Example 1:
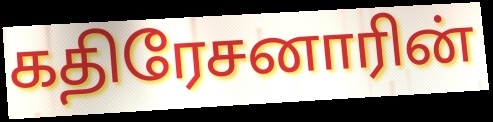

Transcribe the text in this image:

கதிரேசனாரின்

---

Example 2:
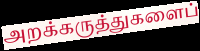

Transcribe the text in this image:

அறக்கருத்துகளைப்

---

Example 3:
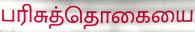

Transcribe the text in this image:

பரிசுத்தொகையை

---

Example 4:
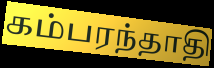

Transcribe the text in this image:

கம்பரந்தாதி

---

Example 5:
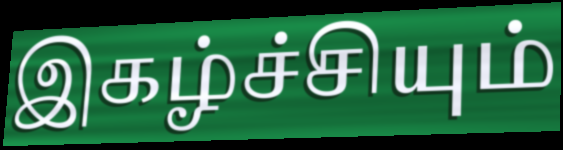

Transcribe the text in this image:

இகழ்ச்சியும்